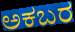
ಅಕಬರ